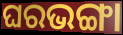
ଘରଭଙ୍ଗା